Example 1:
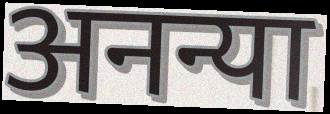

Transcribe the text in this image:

अनन्या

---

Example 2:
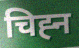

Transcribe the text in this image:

चिह्‍न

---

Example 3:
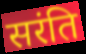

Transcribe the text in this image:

सरंति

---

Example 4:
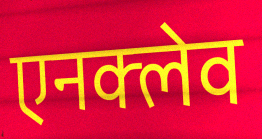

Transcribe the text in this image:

एनक्‍लेव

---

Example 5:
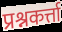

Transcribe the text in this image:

प्रश्नकर्त्ता